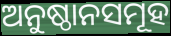
ଅନୁଷ୍ଠାନସମୂହ